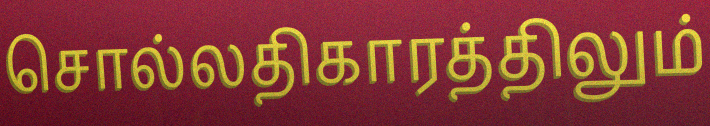
சொல்லதிகாரத்திலும்